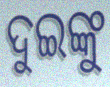
ଦୁଇଙ୍କୁ